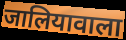
जालियावाला